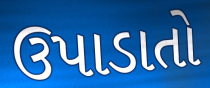
ઉપાડાતો